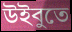
উইবুতে